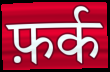
फ़र्क